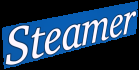
Steamer